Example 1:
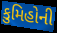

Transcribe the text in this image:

કુમિહોની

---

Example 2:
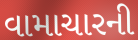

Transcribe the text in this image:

વામાચારની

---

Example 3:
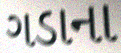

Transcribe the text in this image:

ગડાના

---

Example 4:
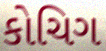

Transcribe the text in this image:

કોચિગ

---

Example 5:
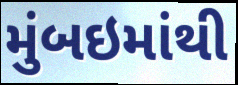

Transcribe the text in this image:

મુંબઇમાંથી